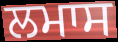
ਲਮਾਸ